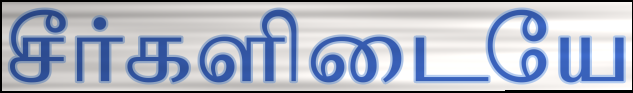
சீர்களிடையே